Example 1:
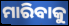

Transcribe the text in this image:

ମାରିବାକୁ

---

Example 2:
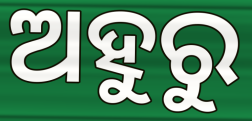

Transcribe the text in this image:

ଅହୁରୁ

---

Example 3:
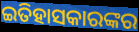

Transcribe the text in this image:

ଇତିହାସକାରଙ୍କର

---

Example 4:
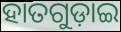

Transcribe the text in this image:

ହାତଗୁଡ଼ାଇ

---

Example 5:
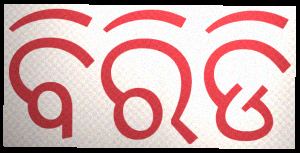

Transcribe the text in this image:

ବିରିଡି